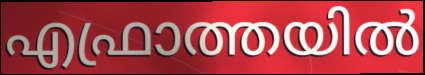
എഫ്രാത്തയിൽ